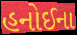
હનોઈના